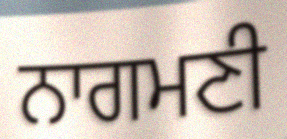
ਨਾਗਮਣੀ